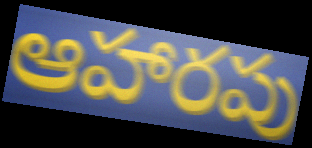
ఆహారపు